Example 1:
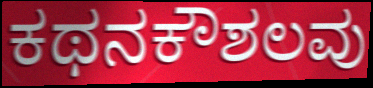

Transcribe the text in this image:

ಕಥನಕೌಶಲವು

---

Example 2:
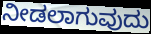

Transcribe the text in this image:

ನೀಡಲಾಗುವುದು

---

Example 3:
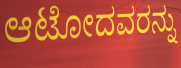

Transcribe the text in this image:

ಆಟೋದವರನ್ನು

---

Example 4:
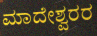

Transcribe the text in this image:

ಮಾದೇಶ್ವರರ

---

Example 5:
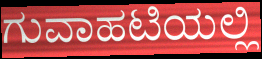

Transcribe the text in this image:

ಗುವಾಹಟಿಯಲ್ಲಿ